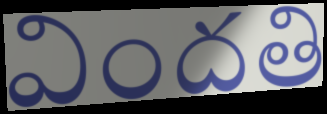
విందతి